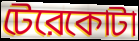
টেরেকোটা